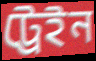
ট্ৰেইন